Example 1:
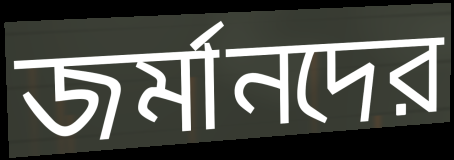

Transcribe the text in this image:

জর্মানদের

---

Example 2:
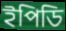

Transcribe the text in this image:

ইপিডি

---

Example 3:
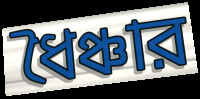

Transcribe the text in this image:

ধৈঞ্চার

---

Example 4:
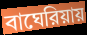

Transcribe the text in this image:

বাঘেরিয়ায়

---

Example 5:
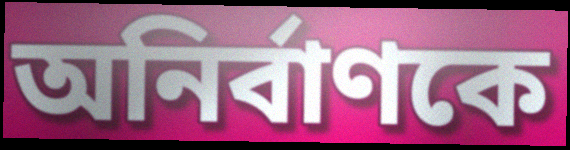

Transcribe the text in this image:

অনির্বাণকে